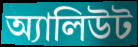
অ্যালিউট